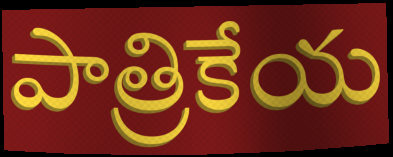
పాత్రికేయ